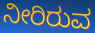
ನೀರಿರುವ